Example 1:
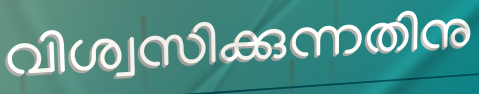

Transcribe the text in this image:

വിശ്വസിക്കുന്നതിനു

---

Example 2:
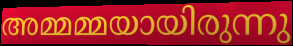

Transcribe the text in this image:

അമ്മമ്മയായിരുന്നു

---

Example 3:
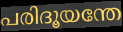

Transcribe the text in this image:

പരിദൂയന്തേ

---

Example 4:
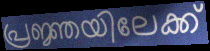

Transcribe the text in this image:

പ്രജ്ഞയിലേക്ക്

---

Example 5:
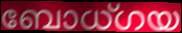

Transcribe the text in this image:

ബോധ്ഗയ